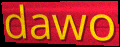
dawo